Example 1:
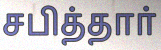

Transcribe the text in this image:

சபித்தார்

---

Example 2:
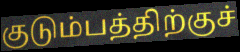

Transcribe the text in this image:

குடும்பத்திற்குச்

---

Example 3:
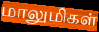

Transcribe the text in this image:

மாலுமிகள்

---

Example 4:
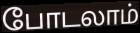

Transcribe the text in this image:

போடலாம்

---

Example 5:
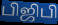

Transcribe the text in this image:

பிஜிபி